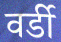
वर्डी